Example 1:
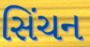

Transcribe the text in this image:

સિંચન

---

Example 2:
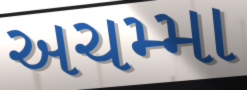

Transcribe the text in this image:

અચમ્મા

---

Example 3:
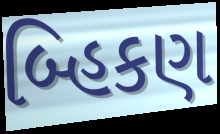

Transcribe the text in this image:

બ્હિકણ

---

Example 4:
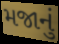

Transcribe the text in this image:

મજાનું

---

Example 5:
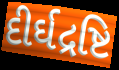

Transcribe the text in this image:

દીર્ઘદ્રષ્ટિ